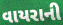
વાયરાની